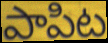
పాపిట